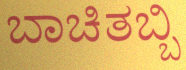
ಬಾಚಿತಬ್ಬಿ